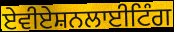
ਏਵੀਏਸ਼ਨਲਾਈਟਿੰਗ